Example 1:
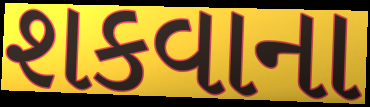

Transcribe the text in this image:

શકવાના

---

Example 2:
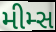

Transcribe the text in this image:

મીમ્સ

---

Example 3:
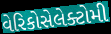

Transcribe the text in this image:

વેરિકોસેલેક્ટોમી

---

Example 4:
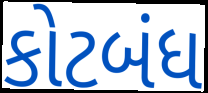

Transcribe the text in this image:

કોટબંધ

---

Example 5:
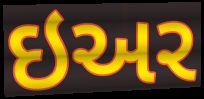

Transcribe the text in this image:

ઇઅર